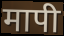
मापी